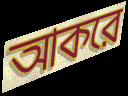
আকরে